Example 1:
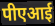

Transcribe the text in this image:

पीएआई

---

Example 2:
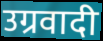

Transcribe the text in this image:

उग्रवादी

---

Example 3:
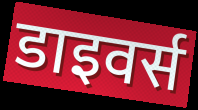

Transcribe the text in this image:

डाइवर्स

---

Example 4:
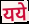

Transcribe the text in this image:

यये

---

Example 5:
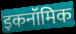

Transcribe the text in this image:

इकनॉमिक